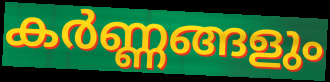
കർണ്ണങ്ങളും